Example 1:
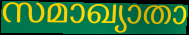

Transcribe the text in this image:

സമാഖ്യാതാ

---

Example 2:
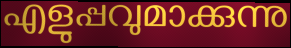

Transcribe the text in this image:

എളുപ്പവുമാക്കുന്നു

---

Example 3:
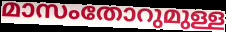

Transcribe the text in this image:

മാസംതോറുമുള്ള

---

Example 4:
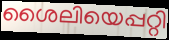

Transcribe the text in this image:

ശൈലിയെപ്പറ്റി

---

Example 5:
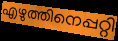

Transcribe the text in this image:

എഴുത്തിനെപ്പറ്റി